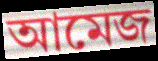
আমেজ